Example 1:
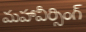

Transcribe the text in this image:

మహావీర్సింగ్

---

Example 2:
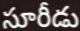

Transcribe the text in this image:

సూరీడు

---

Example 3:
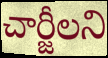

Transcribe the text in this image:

చార్జీలని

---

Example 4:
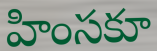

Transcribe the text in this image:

హింసకూ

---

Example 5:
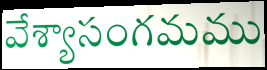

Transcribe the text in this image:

వేశ్యాసంగమము